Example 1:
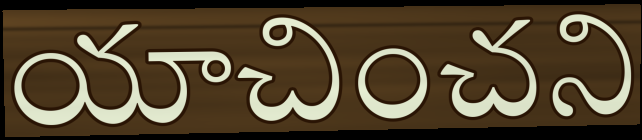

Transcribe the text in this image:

యాచించని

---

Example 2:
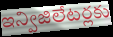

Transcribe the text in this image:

ఇన్విజిలేటర్లకు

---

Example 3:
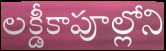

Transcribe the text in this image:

లక్డీకాపూల్లోని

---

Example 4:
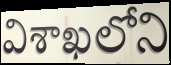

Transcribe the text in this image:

విశాఖలోని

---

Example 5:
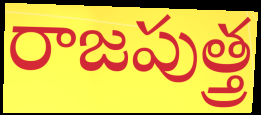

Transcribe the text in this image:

రాజపుత్త్ర